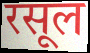
रसूल